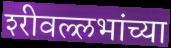
श्रीवल्लभांच्या